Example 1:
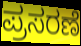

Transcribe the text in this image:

ಪ್ರಸರಣೆ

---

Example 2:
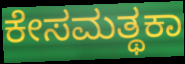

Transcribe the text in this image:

ಕೇಸಮತ್ಥಕಾ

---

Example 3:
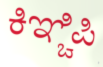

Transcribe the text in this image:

ಕಿಞ್ಚಿಪಿ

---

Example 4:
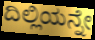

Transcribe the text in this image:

ದಿಲ್ಲಿಯನ್ನೇ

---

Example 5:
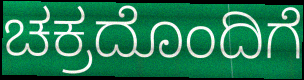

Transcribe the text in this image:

ಚಕ್ರದೊಂದಿಗೆ